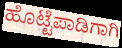
ಹೊಟ್ಟೆಪಾಡಿಗಾಗಿ